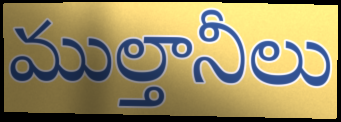
ముల్తానీలు